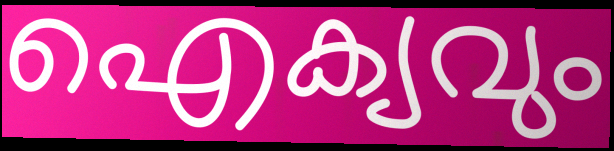
ഐക്യവും